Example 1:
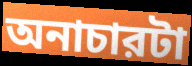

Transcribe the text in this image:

অনাচারটা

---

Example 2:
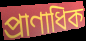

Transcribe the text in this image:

প্রাণাধিক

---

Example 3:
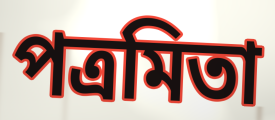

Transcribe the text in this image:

পত্রমিতা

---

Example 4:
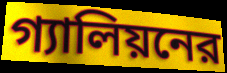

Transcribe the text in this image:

গ্যালিয়নের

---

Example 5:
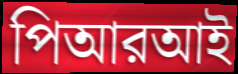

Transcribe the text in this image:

পিআরআই